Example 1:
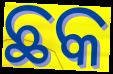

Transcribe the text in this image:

ଛକ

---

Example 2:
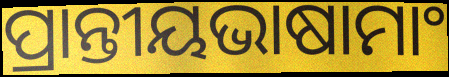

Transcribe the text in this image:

ପ୍ରାନ୍ତୀୟଭାଷାମାଂ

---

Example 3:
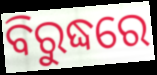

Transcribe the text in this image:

ବିରୁଦ୍ଧରେ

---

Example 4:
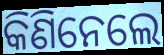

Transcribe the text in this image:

କିଣିନେଲେ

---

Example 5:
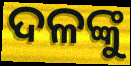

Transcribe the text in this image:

ଦଳଙ୍କୁ